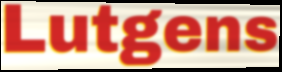
Lutgens